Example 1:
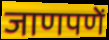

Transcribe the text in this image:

जाणपणें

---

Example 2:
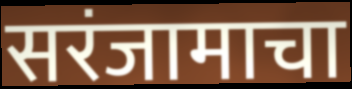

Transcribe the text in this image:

सरंजामाचा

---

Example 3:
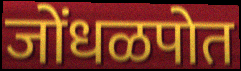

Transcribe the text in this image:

जोंधळपोत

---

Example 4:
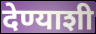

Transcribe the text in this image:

देण्याशी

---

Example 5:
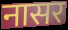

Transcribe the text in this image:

नासर